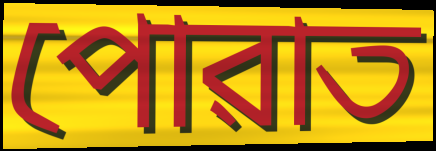
পোৱাত